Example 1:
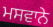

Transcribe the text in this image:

ਮਸਵਾਨੇ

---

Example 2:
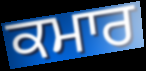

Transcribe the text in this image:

ਕਮਾਰ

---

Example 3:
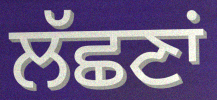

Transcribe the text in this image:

ਲੱਛਣਾਂ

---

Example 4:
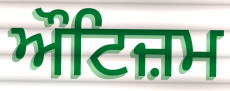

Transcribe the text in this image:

ਔਟਿਜ਼ਮ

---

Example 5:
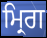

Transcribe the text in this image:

ਮ੍ਰਿਗ